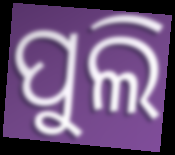
ପୁଲି